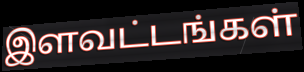
இளவட்டங்கள்